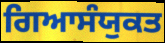
ਗਿਆਸੰਯੁਕਤ